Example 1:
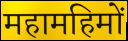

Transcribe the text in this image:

महामहिमों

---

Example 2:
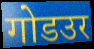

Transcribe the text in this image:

गोडउर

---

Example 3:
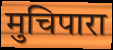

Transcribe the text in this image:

मुचिपारा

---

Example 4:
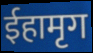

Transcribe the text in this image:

ईहामृग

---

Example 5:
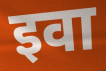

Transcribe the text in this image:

इवा